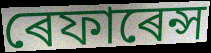
ৰেফাৰেন্স